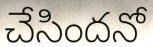
చేసిందనో